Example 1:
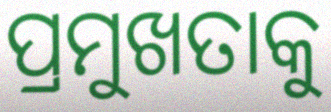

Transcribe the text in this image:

ପ୍ରମୁଖତାକୁ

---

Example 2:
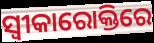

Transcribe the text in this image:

ସ୍ୱୀକାରୋକ୍ତିରେ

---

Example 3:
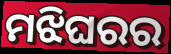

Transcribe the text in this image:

ମଝିଘରର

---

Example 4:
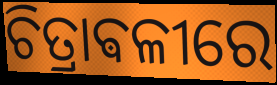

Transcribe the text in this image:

ଚିତ୍ରାଵଳୀରେ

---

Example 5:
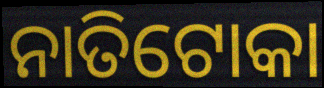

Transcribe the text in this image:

ନାତିଟୋକା